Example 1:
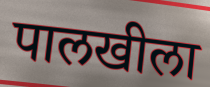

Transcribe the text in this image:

पालखीला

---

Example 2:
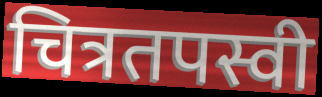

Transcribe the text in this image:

चित्रतपस्वी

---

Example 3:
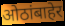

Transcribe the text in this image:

ओठांबाहेर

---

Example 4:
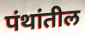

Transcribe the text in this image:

पंथांतील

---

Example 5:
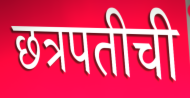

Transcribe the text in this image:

छत्रपतीची